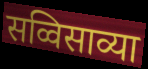
सव्विसाव्या